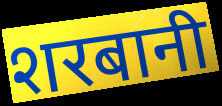
शरबानी